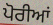
ਪੋਰੀਆਂ